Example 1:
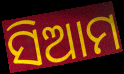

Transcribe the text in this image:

ସିଆମ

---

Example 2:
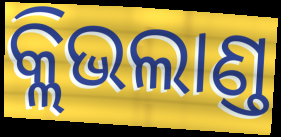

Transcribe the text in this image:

କ୍ଲିଭଲାଣ୍ଡ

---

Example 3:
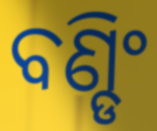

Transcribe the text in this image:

ବଣ୍ଡିଂ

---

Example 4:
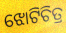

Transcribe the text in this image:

ଝୋଟିଚିତ୍ର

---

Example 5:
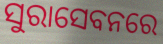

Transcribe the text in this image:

ସୁରାସେବନରେ